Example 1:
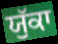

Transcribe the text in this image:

ਯੁੱਕਾ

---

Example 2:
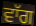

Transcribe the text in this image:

ਵਾੱਗ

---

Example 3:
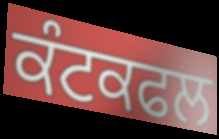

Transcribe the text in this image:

ਕੰਟਕਫਲ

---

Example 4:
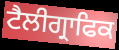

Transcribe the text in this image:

ਟੈਲੀਗ੍ਰਾਫਿਕ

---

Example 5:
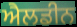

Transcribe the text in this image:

ਐਲਡੀਨ